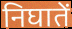
निघातें